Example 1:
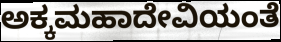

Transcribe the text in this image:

ಅಕ್ಕಮಹಾದೇವಿಯಂತೆ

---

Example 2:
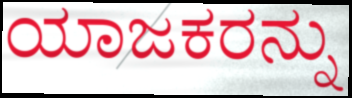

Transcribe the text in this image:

ಯಾಜಕರನ್ನು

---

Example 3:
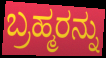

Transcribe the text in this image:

ಬ್ರಹ್ಮರನ್ನು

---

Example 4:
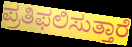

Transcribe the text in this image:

ಪ್ರತಿಫಲಿಸುತ್ತಾರೆ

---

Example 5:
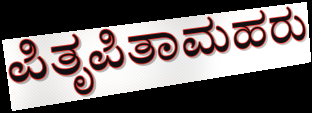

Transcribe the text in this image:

ಪಿತೃಪಿತಾಮಹರು